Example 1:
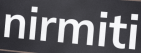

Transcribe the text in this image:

nirmiti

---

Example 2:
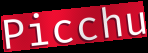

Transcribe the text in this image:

Picchu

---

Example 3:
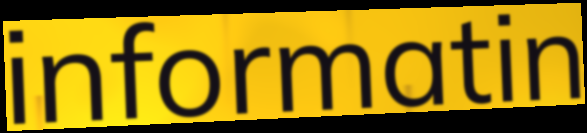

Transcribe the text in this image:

informatin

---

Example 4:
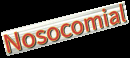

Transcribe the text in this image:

Nosocomial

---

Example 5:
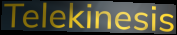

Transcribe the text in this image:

Telekinesis